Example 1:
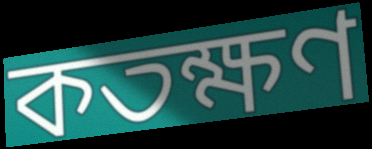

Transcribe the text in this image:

কতক্ষণ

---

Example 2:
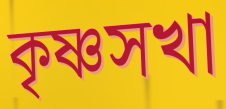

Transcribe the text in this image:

কৃষ্ণসখা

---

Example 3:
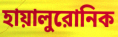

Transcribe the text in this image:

হায়ালুরোনিক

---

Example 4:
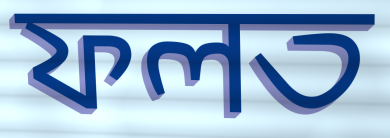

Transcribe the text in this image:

ফলত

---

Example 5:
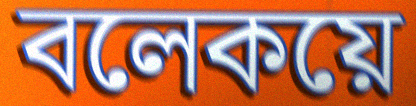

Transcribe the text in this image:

বলেকয়ে